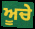
ਅੂਚੇ